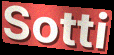
Sotti